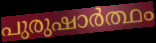
പുരുഷാർത്ഥം